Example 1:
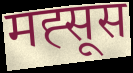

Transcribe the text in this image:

मह्सूस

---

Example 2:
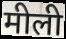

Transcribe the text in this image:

मीली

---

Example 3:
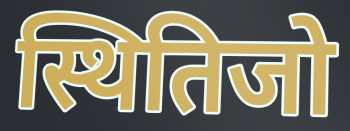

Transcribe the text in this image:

स्थितिजो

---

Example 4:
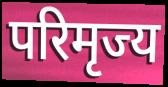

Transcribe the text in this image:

परिमृज्य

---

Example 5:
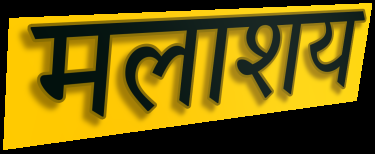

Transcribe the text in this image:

मलाशय